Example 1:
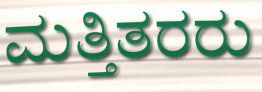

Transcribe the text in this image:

ಮತ್ತಿತರರು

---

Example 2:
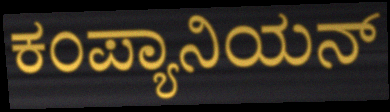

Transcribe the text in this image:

ಕಂಪ್ಯಾನಿಯನ್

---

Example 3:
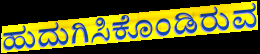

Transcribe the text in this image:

ಹುದುಗಿಸಿಕೊಂಡಿರುವ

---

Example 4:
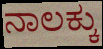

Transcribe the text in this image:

ನಾಲಕ್ಕು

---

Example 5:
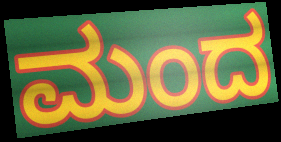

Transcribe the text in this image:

ಮಂದ